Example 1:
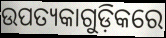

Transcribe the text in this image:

ଉପତ୍ୟକାଗୁଡ଼ିକରେ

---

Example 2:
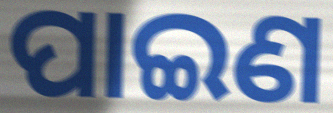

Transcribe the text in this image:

ପାଇଣ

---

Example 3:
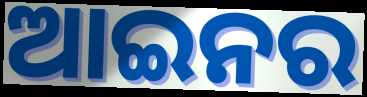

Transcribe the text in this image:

ଆଇନର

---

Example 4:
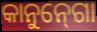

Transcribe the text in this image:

କାନୁନ୍‍ଗୋ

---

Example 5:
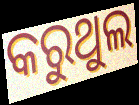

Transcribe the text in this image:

କରୁଥୁଲ